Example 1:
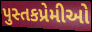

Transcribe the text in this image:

પુસ્તકપ્રેમીઓ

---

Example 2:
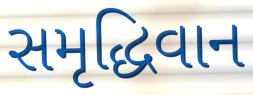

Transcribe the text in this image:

સમૃદ્ધિવાન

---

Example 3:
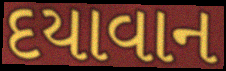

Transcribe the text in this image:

દયાવાન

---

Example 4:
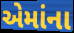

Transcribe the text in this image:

એમાંના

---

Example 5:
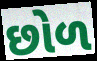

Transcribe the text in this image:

છોળ